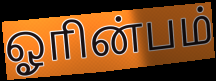
ஓரின்பம்